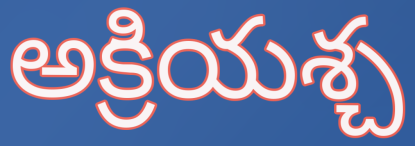
అక్రియశ్చ